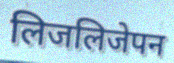
लिजलिजेपन